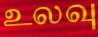
உலவு